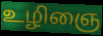
உழிஞை